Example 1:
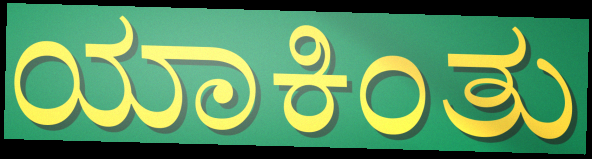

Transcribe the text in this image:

ಯಾಕಿಂತು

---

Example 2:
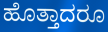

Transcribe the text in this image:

ಹೊತ್ತಾದರೂ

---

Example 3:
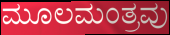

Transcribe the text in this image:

ಮೂಲಮಂತ್ರವು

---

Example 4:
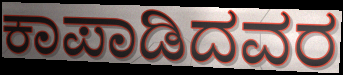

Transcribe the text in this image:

ಕಾಪಾಡಿದವರ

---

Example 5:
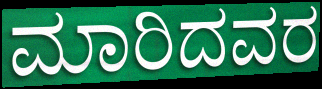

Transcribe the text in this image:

ಮಾರಿದವರ